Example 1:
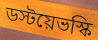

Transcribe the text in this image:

ডস্টয়েভস্কি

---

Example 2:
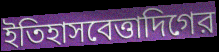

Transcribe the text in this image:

ইতিহাসবেত্তাদিগের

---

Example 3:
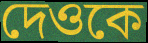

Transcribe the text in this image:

দেওকে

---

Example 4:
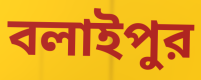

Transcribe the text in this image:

বলাইপুর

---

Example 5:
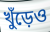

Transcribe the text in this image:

খুঁড়েও